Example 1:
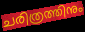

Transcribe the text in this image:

ചരിത്രത്തിനും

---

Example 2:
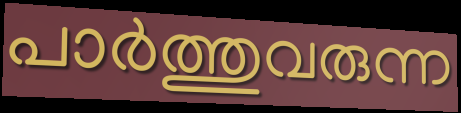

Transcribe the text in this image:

പാർത്തുവരുന്ന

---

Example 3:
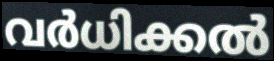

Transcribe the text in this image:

വർധിക്കൽ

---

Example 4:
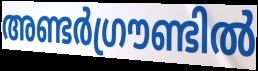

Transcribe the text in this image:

അണ്ടർഗ്രൗണ്ടിൽ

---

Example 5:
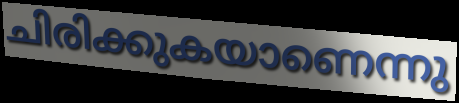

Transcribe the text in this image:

ചിരിക്കുകയാണെന്നു